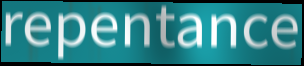
repentance